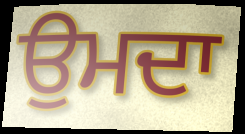
ਉਮਦਾ